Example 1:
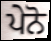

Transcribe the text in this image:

ਪੇਨੋ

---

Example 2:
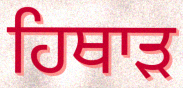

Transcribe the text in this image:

ਹਿਥਾੜ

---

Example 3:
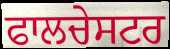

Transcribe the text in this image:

ਫਾਲਚੇਸਟਰ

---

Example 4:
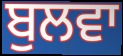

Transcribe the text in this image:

ਬੁਲਵਾ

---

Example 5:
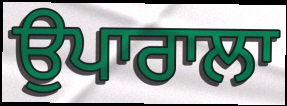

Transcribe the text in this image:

ਉਪਾਰਾਲਾ